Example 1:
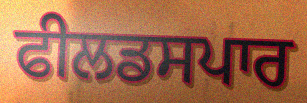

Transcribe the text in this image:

ਫੀਲਡਸਪਾਰ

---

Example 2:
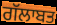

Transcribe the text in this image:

ਗੱਲਾਬਤ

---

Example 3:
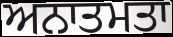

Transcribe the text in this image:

ਅਨਾਤਮਤਾ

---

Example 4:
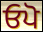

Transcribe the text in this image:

ਓਪੋ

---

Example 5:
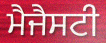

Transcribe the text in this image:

ਮੈਜੈਸਟੀ